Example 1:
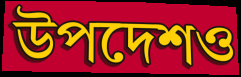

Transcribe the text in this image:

উপদেশও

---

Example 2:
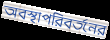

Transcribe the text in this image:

অবস্থাপরিবর্তনের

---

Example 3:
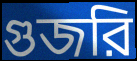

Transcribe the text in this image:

গুজরি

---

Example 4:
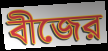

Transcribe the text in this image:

বীজের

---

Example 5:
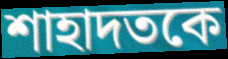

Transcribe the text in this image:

শাহাদতকে